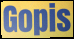
Gopis